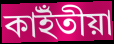
কাইঁতীয়া